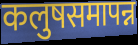
कलुषसमापन्न